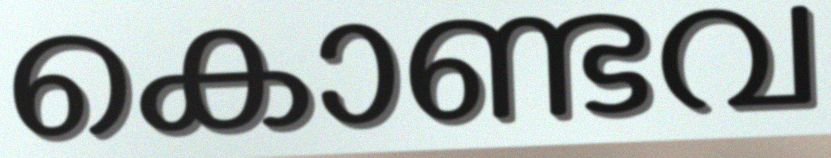
കൊണ്ടവ